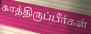
காத்திருப்பீர்கள்